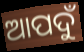
ଆପଦୁଁ